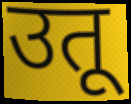
उतू